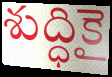
శుద్ధికై